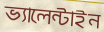
ভ্যালেন্টাইন